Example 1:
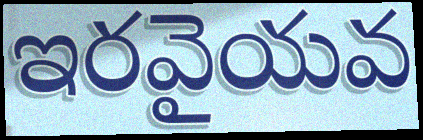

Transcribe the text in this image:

ఇరవైయవ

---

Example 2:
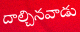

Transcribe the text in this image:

దాల్చినవాడు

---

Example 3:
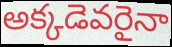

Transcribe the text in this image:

అక్కడెవరైనా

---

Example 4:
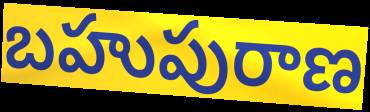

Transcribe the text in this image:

బహుపురాణ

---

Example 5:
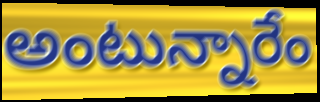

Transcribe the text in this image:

అంటున్నారేం